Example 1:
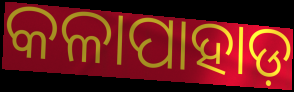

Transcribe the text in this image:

କଳାପାହାଡ଼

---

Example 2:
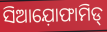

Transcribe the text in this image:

ସିଆଯ଼ୋଫାମିଡ୍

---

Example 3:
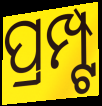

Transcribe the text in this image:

ପ୍ରମ୍ପ୍ଟ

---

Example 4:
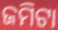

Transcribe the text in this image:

ଜମିଟା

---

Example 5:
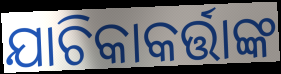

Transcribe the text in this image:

ଯାଚିକାକର୍ତ୍ତାଙ୍କ